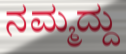
ನಮ್ಮದ್ದು